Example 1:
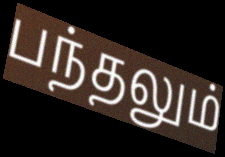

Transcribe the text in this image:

பந்தலும்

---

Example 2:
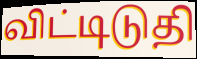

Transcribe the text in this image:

விட்டிடுதி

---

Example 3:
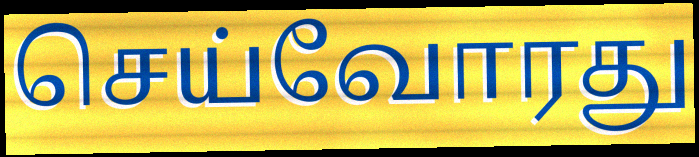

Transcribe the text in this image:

செய்வோரது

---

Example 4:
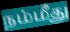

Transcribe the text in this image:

நம்மீது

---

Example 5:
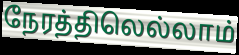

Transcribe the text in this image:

நேரத்திலெல்லாம்